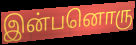
இன்பனொரு